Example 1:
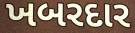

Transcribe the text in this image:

ખબરદાર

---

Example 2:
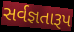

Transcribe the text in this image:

સર્વજ્ઞતારૂપ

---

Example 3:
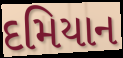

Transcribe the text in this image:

દમિયાન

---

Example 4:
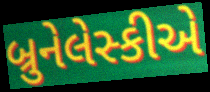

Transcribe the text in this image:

બ્રુનેલેસ્કીએ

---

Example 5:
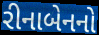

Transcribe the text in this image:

રીનાબેનનો